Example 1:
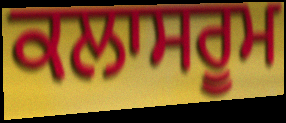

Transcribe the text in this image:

ਕਲਾਸਰੂਮ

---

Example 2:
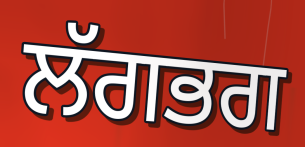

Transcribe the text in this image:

ਲੱਗਭਗ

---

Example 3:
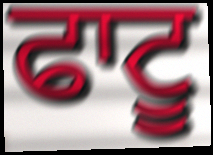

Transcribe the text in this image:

ਫਾਟੂ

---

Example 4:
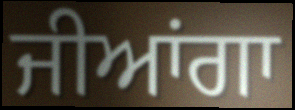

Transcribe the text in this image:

ਜੀਆਂਗਾ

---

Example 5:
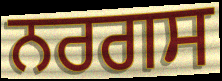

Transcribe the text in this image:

ਨਰਗਸ